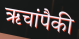
ऋचांपैकी